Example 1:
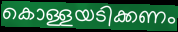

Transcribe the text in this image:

കൊള്ളയടിക്കണം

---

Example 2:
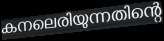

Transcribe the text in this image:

കനലെരിയുന്നതിന്റെ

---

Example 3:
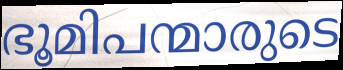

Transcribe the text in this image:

ഭൂമിപന്മാരുടെ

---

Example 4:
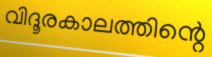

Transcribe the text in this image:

വിദൂരകാലത്തിന്റെ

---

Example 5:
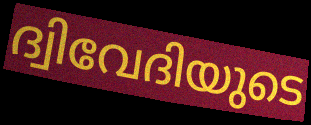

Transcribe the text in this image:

ദ്വിവേദിയുടെ